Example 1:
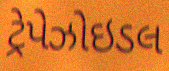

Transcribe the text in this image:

ટ્રેપેઝોઇડલ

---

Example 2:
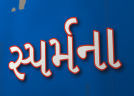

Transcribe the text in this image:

સ્પર્મના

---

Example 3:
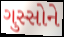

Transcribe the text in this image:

ગુસ્સોને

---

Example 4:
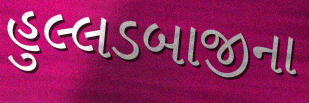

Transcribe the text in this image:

હુલ્લડબાજીના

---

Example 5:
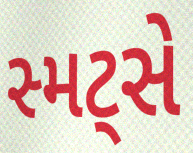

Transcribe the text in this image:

સ્મટ્સે